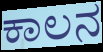
ಕಾಲನ